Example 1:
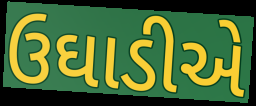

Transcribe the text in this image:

ઉઘાડીએ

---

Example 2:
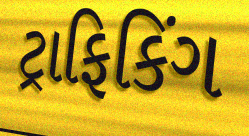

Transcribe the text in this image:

ટ્રાફિકિંગ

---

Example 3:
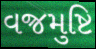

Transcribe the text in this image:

વજ્રમુષ્ટિ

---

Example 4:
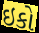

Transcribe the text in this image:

ઇકો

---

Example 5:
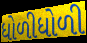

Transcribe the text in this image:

ધોળીધોળી